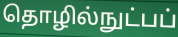
தொழில்நுட்பப்